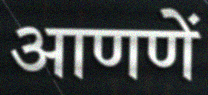
आणणें